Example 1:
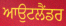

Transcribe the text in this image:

ਆਉਟਲੈਂਡਰ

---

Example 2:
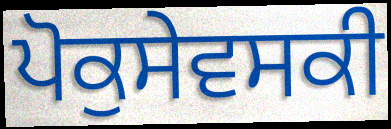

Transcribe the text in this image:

ਪੋਕੁਸੇਵਸਕੀ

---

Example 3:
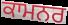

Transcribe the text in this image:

ਕਾਮਨਰ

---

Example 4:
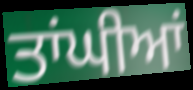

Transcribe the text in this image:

ਤਾਂਘੀਆਂ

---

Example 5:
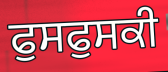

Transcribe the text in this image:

ਫੁਸਫੁਸਕੀ